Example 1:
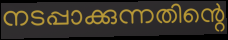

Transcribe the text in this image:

നടപ്പാക്കുന്നതിന്റെ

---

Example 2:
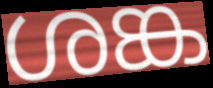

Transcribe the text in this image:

ശങ്ക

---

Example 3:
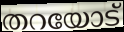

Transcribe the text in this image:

തറയോട്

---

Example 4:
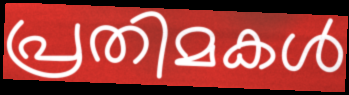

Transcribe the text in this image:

പ്രതിമകൾ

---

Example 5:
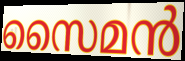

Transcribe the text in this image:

സൈമൻ